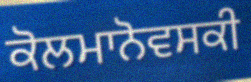
ਕੋਲਮਾਨੋਵਸਕੀ